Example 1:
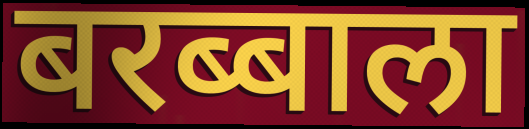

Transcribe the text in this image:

बरब्बाला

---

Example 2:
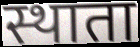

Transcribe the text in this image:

स्थाता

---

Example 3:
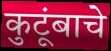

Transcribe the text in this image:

कुटूंबाचे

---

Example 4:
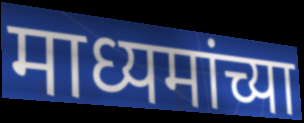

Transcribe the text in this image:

माध्यमांच्या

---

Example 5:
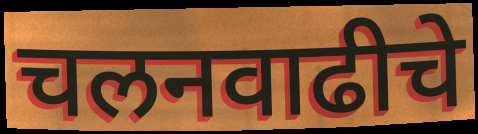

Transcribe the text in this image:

चलनवाढीचे